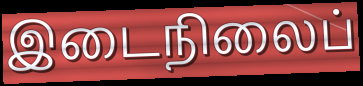
இடைநிலைப்